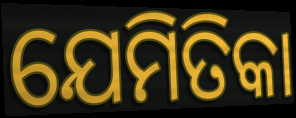
ଯେମିତିକା